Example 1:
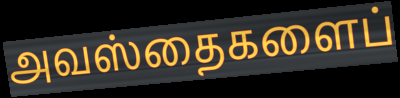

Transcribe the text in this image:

அவஸ்தைகளைப்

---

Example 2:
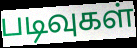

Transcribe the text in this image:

படிவுகள்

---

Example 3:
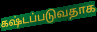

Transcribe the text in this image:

கஷ்டப்படுவதாக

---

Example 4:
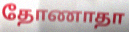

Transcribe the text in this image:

தோணாதா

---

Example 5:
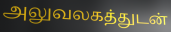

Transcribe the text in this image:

அலுவலகத்துடன்